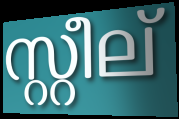
സ്റ്റീല്